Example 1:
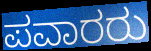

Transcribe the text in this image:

ಪವಾರರು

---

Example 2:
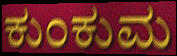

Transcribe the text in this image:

ಕುಂಕುಮ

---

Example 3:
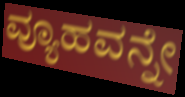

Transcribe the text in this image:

ವ್ಯೂಹವನ್ನೇ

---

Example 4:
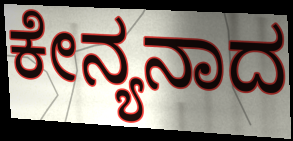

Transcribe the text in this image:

ಕೇನ್ಯನಾದ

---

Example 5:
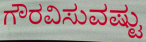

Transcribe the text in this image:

ಗೌರವಿಸುವಷ್ಟು